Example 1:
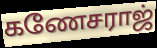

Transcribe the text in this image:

கணேசராஜ்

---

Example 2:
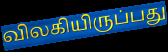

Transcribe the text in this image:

விலகியிருப்பது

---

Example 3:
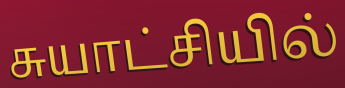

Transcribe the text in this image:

சுயாட்சியில்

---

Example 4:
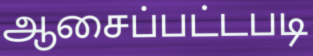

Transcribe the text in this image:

ஆசைப்பட்டபடி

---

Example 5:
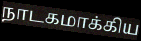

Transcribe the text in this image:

நாடகமாக்கிய